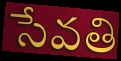
సేవతి